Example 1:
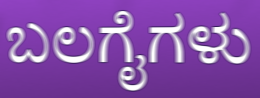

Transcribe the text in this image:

ಬಲಗೈಗಳು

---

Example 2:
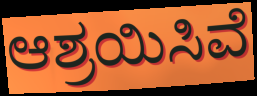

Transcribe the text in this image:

ಆಶ್ರಯಿಸಿವೆ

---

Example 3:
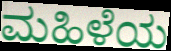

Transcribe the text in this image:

ಮಹಿಳೆಯ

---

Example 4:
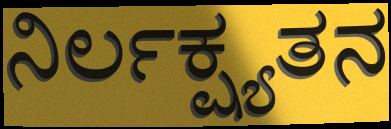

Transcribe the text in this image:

ನಿರ್ಲಕ್ಷ್ಯತನ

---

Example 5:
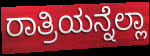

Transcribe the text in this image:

ರಾತ್ರಿಯನ್ನೆಲ್ಲಾ